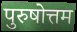
पुरुषोत्तम